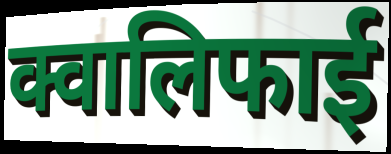
क्वालिफाई